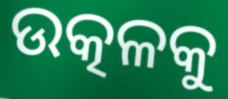
ଉତ୍କଳକୁ